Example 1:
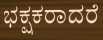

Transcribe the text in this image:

ಭಕ್ಷಕರಾದರೆ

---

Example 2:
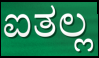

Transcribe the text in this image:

ಐತಲ್ಲ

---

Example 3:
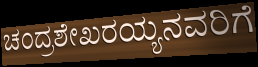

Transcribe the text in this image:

ಚಂದ್ರಶೇಖರಯ್ಯನವರಿಗೆ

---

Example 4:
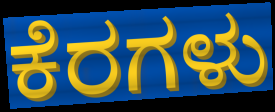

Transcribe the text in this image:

ಕೆರಗಳು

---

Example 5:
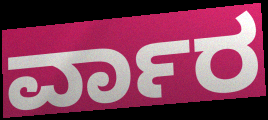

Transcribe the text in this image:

ರ್ವಾರ